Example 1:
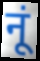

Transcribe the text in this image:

नूं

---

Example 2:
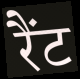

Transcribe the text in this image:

रैंट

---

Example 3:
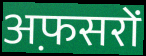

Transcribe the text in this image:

अ़फसरों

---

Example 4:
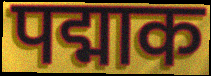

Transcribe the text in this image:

पद्माक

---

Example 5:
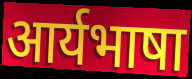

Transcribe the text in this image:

आर्यभाषा